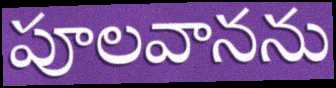
పూలవానను